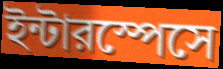
ইন্টারস্পেসে